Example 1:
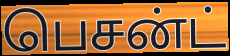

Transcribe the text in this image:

பெசன்ட்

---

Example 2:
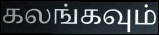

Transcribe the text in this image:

கலங்கவும்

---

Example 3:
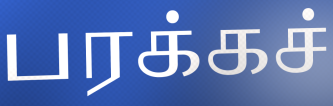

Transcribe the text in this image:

பரக்கச்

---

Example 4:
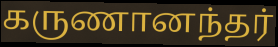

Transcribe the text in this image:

கருணானந்தர்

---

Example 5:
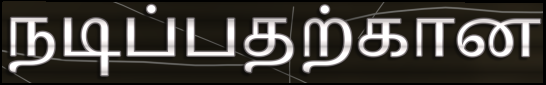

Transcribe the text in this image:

நடிப்பதற்கான